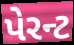
પેરન્ટ